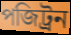
পজিট্রন